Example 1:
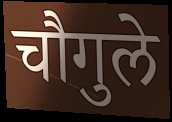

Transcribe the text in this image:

चौगुले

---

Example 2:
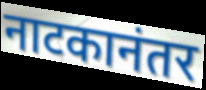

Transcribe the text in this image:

नाटकानंतर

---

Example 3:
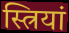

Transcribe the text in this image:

स्त्रियां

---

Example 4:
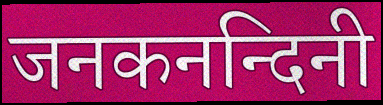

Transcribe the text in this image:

जनकनन्दिनी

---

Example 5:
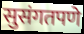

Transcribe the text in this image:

सुसंगतपणे